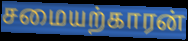
சமையற்காரன்